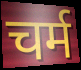
चर्म